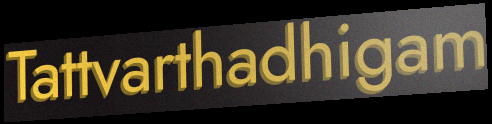
Tattvarthadhigam